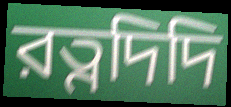
রত্নদিদি